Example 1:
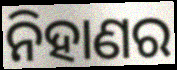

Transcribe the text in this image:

ନିହାଣର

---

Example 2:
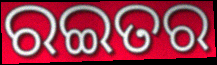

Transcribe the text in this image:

ରଇତର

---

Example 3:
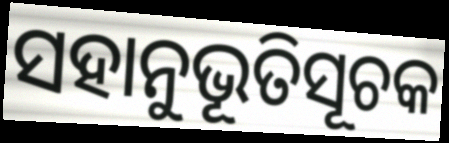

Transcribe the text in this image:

ସହାନୁଭୂତିସୂଚକ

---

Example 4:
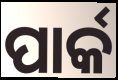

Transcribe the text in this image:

ପାର୍କ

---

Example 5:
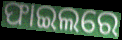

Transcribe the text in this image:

ଫାଇଲରେ